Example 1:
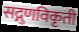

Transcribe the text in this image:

सद्गुणविकृती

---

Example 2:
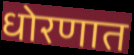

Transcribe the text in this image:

धोरणात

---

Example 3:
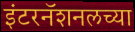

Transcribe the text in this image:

इंटरनॅशनलच्या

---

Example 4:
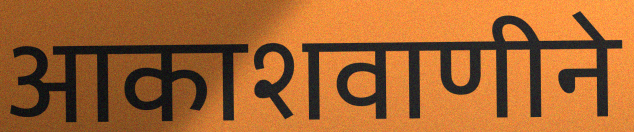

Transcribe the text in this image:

आकाशवाणीने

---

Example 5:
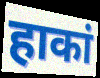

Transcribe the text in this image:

हाकां